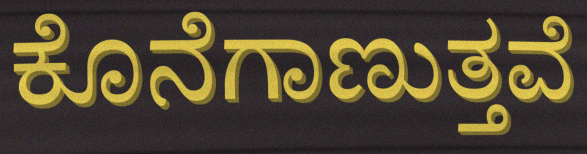
ಕೊನೆಗಾಣುತ್ತವೆ